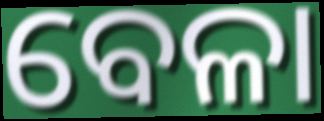
ବେଳା